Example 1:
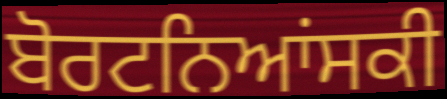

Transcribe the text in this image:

ਬੋਰਟਨਿਆਂਸਕੀ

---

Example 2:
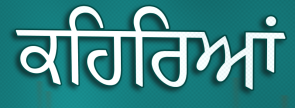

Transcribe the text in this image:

ਕਹਿਰਿਆਂ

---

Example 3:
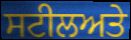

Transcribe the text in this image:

ਸਟੀਲਅਤੇ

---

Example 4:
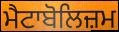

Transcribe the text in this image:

ਮੈਟਾਬੋਲਿਜ਼ਮ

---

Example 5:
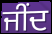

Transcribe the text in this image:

ਜੀਂਦ